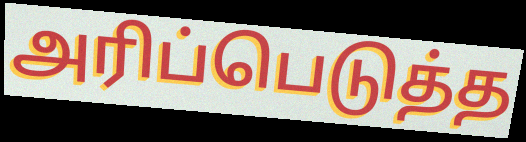
அரிப்பெடுத்த